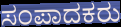
ಸಂಪಾದಕರು